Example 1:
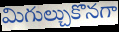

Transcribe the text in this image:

మిగుల్చుకొనగా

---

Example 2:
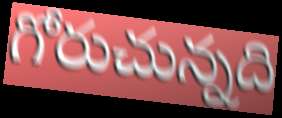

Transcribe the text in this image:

గోరుచున్నది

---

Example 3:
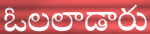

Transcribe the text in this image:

ఓలలాడారు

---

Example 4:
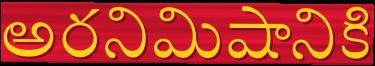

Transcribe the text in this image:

అరనిమిషానికి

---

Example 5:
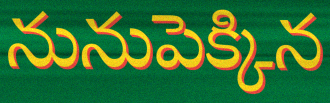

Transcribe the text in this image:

నునుపెక్కిన